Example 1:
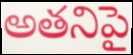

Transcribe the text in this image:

అతనిపై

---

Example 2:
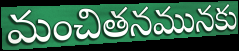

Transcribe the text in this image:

మంచితనమునకు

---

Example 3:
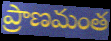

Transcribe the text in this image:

ప్రాణమంత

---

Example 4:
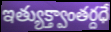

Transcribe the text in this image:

ఇత్యుక్త్వాంతర్దధే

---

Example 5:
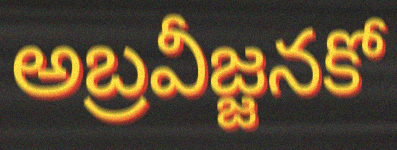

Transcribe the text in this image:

అబ్రవీజ్జనకో